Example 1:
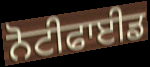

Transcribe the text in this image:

ਨੋਟੀਫਾਈਡ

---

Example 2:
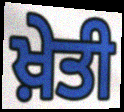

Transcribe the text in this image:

ਖ਼ੇਤੀ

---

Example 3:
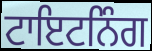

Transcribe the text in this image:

ਟਾਇਟਨਿੰਗ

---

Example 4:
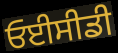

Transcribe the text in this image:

ਓਈਸੀਡੀ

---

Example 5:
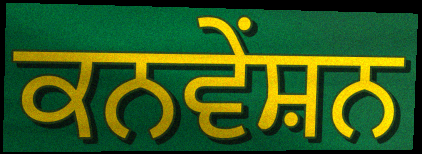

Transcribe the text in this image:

ਕਨਵੇਂਸ਼ਨ